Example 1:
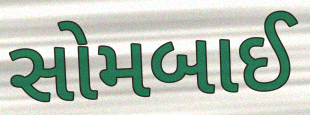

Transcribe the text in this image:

સોમબાઈ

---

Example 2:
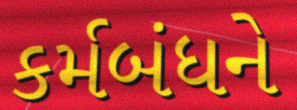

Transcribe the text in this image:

કર્મબંધને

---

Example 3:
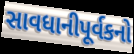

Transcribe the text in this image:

સાવધાનીપૂર્વકનો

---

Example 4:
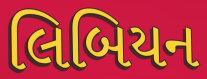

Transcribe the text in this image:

લિબિયન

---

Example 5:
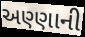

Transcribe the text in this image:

અણ્ણાની